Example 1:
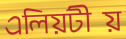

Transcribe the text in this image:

এলিয়টীয়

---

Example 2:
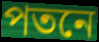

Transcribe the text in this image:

পতনে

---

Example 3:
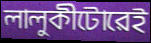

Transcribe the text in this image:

লালুকীটোৱেই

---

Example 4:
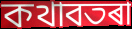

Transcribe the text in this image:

কথাবতৰা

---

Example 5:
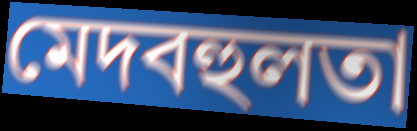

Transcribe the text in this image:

মেদবহুলতা